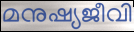
മനുഷ്യജീവി